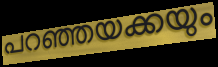
പറഞ്ഞയക്കയും